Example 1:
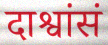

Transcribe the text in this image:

दाश्वांसं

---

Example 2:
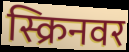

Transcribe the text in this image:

स्क्रिनवर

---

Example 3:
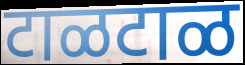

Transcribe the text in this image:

टाळटाळ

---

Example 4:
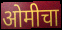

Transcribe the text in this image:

ओमीचा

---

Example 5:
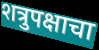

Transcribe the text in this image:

शत्रुपक्षाचा